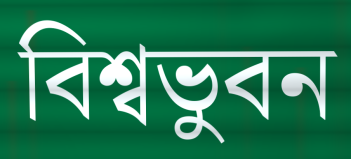
বিশ্বভুবন